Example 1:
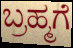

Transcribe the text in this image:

ಬ್ರಹ್ಮಗೆ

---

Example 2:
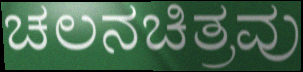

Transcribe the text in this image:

ಚಲನಚಿತ್ರವು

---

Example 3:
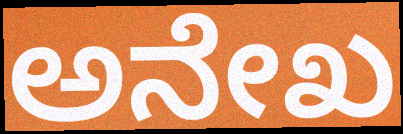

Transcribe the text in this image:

ಅನೇಖ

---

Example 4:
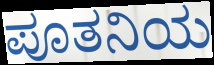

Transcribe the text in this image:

ಪೂತನಿಯ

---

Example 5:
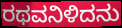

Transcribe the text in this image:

ರಥವನಿಳಿದನು